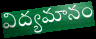
విద్యమానం